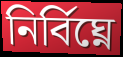
নির্বিঘ্নে